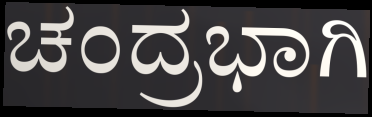
ಚಂದ್ರಭಾಗಿ